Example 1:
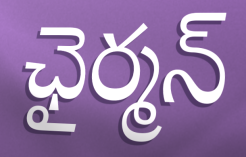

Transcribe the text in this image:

ఛైర్మన్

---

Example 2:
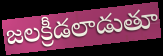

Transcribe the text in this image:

జలక్రీడలాడుతూ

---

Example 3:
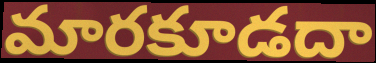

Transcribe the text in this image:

మారకూడదా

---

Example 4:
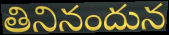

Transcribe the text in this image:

తినినందున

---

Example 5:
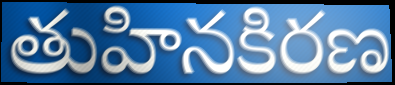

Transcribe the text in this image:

తుహినకిరణ